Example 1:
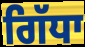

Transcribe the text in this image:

ਗਿੱਧਾ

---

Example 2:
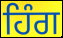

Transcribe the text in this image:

ਹਿੰਗ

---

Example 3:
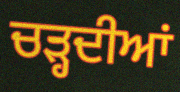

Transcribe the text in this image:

ਚੜ੍ਹਦੀਆਂ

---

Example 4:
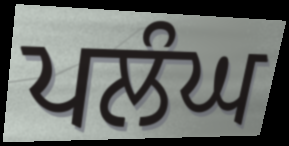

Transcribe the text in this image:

ਪਲੰਘ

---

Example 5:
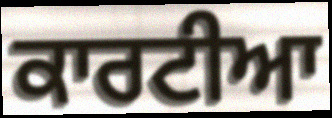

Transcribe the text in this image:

ਕਾਰਟੀਆ